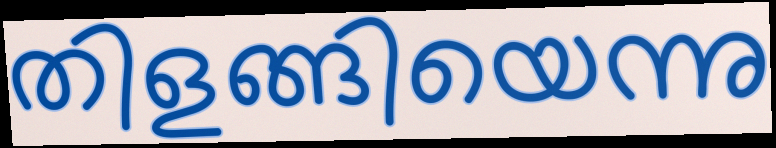
തിളങ്ങിയെന്നു